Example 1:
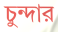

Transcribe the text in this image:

চুন্দার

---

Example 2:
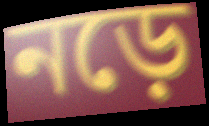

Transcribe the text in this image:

নড়ে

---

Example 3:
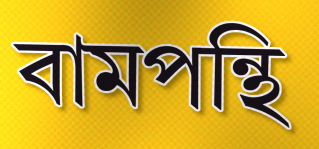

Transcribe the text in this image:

বামপন্থি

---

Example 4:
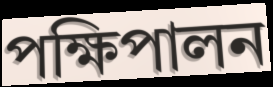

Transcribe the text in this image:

পক্ষিপালন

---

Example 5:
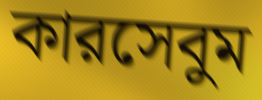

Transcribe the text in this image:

কারসেবুম